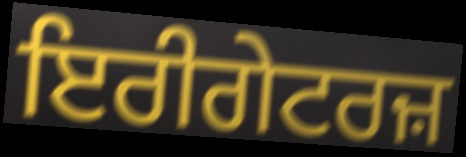
ਇਰੀਗੇਟਰਜ਼